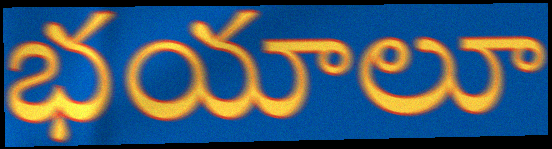
భయాలూ